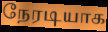
நேரடியாக